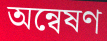
অন্বেষণ